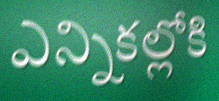
ఎన్నికల్లోకి